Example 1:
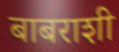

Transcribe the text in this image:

बाबराशी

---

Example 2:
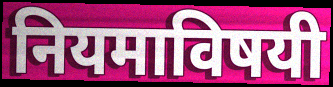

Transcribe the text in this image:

नियमाविषयी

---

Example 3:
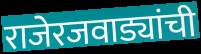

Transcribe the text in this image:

राजेरजवाड्यांची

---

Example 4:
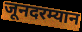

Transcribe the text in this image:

जूनदरम्यान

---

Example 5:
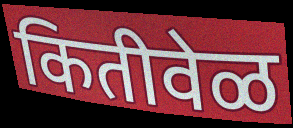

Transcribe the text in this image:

कितीवेळ